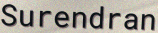
Surendran